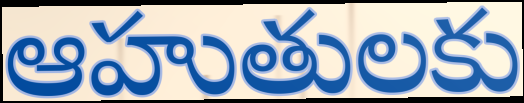
ఆహుతులకు